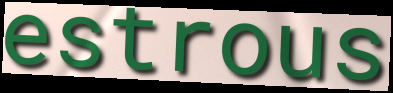
estrous